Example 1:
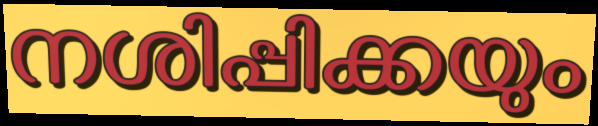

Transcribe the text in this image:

നശിപ്പിക്കയും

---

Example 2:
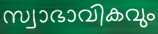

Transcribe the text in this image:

സ്വാഭാവികവും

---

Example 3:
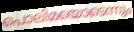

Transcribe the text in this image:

പൊലിമയൊടെന്നും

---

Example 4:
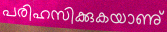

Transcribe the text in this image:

പരിഹസിക്കുകയാണു്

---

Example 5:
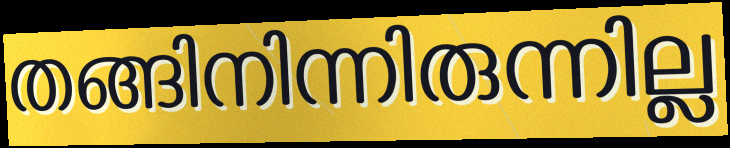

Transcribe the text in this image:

തങ്ങിനിന്നിരുന്നില്ല